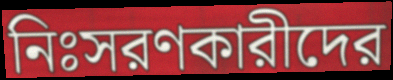
নিঃসরণকারীদের